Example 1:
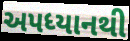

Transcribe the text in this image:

અપધ્યાનથી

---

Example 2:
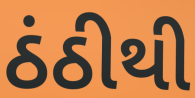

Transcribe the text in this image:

ઠંઠીથી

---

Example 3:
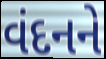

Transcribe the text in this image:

વંદનને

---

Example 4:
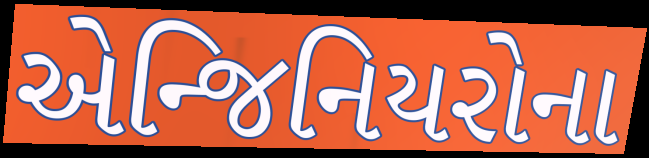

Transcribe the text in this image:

એન્જિનિયરોના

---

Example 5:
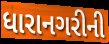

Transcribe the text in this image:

ધારાનગરીની